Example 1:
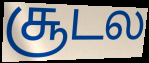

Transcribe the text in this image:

சூடல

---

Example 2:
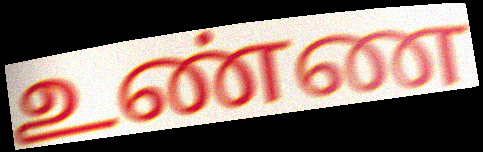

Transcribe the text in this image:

உண்ண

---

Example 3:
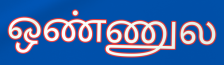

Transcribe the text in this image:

ஒண்ணுல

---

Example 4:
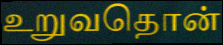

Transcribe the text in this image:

உறுவதொன்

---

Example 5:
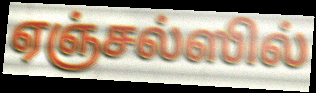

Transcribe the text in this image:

ஏஞ்சல்ஸில்